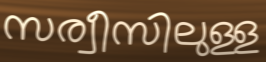
സര്വീസിലുള്ള